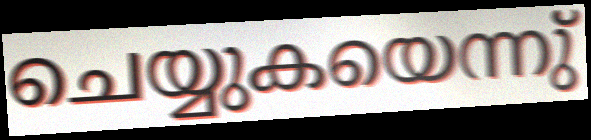
ചെയ്യുകയെന്നു്